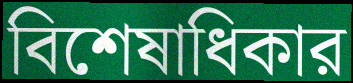
বিশেষাধিকার